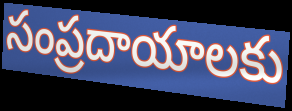
సంప్రదాయాలకు